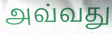
அவ்வது